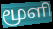
மூளி